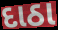
દાઠા